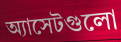
অ্যাসেটগুলো